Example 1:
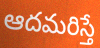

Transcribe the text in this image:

ఆదమరిస్తే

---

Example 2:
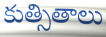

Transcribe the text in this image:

కుత్సితాలు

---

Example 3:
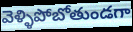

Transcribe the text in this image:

వెళ్ళిపోబోతుండగా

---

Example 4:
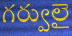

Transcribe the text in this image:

గర్వులై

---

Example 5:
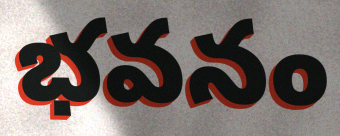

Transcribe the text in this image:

భవనం